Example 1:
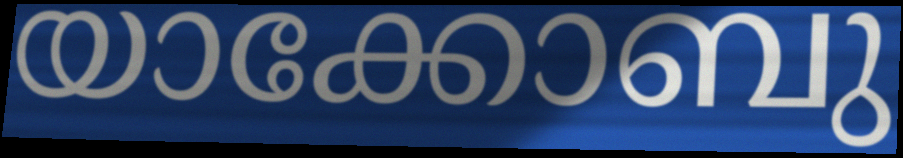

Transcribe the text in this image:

യാക്കോബു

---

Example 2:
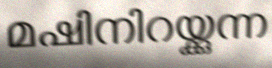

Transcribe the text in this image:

മഷിനിറയ്ക്കുന്ന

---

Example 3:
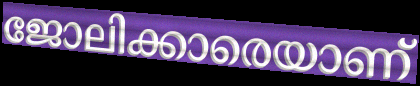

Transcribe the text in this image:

ജോലിക്കാരെയാണ്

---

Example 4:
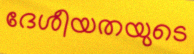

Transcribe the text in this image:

ദേശീയതയുടെ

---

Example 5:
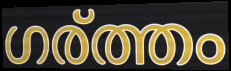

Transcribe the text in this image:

ഗര്ത്തം